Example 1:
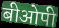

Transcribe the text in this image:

बीओपी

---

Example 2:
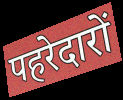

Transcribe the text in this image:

पहरेदारों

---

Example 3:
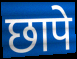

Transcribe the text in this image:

छापे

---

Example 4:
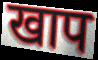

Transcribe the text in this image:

खाप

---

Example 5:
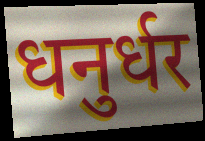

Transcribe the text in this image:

धनुर्धर